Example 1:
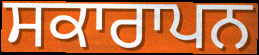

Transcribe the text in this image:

ਸਕਾਰਾਪਨ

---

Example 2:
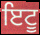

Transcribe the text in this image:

ਇਟੂ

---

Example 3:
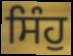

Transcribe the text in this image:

ਸਿੰਹੁ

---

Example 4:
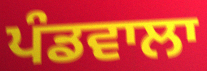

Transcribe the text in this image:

ਪੰਡਵਾਲਾ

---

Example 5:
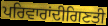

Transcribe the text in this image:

ਪਰਿਵਾਰਾਂਦੀਗਿਣਤੀ